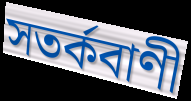
সতৰ্কবাণী